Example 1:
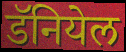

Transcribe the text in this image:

डॅनियेल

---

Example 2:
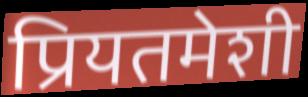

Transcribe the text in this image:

प्रियतमेशी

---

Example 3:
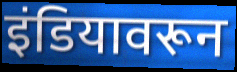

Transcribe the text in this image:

इंडियावरून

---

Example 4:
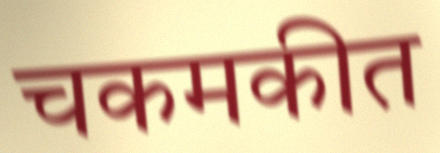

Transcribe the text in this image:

चकमकीत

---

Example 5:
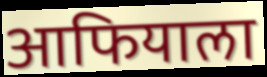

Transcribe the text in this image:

आफियाला